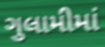
ગુલામીમાં